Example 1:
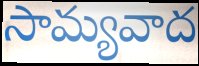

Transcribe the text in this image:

సామ్యవాద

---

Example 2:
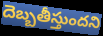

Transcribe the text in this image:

దెబ్బతీస్తుందని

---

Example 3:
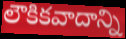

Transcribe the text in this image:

లౌకికవాదాన్ని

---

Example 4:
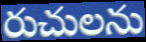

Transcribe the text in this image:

రుచులను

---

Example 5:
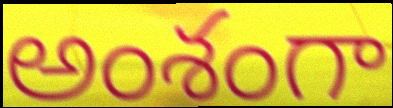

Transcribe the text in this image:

అంశంగా